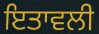
ਇਤਾਵਲੀ